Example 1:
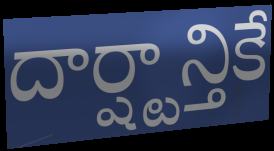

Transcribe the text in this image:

దార్ష్టాన్తికే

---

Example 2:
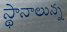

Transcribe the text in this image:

స్థానాలున్న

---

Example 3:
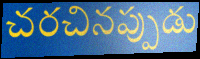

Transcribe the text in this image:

చరచినప్పుడు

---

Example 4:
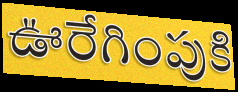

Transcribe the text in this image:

ఊరేగింపుకి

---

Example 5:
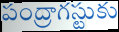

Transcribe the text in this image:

పంద్రాగస్టుకు